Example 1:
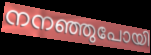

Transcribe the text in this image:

നനഞ്ഞുപോയി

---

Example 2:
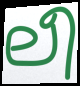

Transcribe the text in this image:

ലീ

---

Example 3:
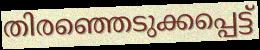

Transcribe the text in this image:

തിരഞ്ഞെടുക്കപ്പെട്ട്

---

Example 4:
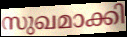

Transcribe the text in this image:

സുഖമാക്കി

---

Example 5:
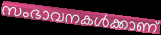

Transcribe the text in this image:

സംഭാവനകൾക്കാണ്